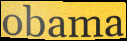
obama